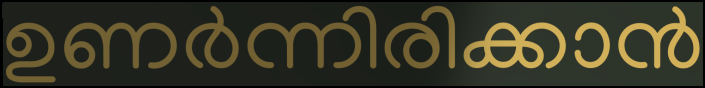
ഉണർന്നിരിക്കാൻ